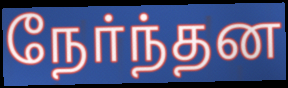
நேர்ந்தன